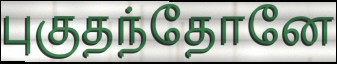
புகுதந்தோனே